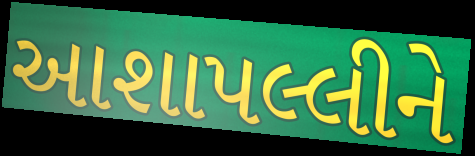
આશાપલ્લીને